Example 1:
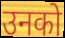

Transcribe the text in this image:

उनको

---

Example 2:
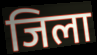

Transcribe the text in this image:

जिला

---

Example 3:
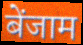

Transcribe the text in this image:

बेंजाम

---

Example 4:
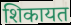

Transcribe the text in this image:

शिकायत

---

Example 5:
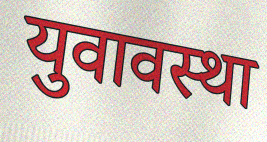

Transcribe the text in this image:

युवावस्था